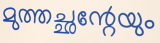
മുത്തച്ഛന്റേയും